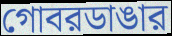
গোবরডাঙার